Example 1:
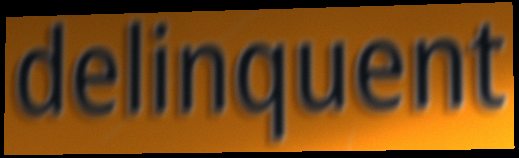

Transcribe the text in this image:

delinquent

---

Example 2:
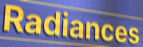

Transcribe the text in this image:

Radiances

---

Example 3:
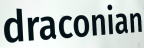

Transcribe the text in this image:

draconian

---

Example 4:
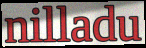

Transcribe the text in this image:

nilladu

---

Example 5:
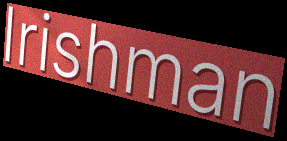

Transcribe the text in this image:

Irishman